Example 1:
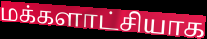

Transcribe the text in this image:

மக்களாட்சியாக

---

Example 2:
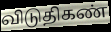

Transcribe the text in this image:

விடுதிகண்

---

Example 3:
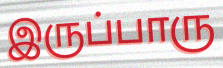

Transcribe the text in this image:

இருப்பாரு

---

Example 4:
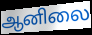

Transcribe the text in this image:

ஆனிலை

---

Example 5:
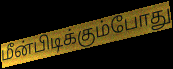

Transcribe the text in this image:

மீன்பிடிக்கும்போது